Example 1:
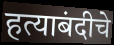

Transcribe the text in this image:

हत्याबंदीचे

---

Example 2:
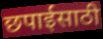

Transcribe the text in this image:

छपाईसाठी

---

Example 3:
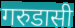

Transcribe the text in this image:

गरुडासी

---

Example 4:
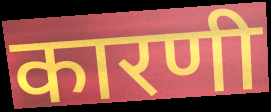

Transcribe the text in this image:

कारणी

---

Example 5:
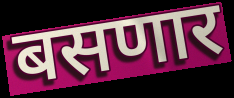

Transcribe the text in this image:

बसणार